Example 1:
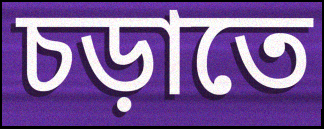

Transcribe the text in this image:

চড়াতে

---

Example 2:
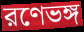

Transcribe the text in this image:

রণেভঙ্গ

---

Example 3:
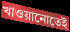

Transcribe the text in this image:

খাওয়ানোতেই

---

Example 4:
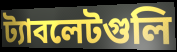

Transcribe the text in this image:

ট্যাবলেটগুলি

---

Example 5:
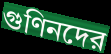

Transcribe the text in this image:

গুণিনদের